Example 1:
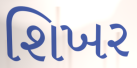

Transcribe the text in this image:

શિખર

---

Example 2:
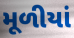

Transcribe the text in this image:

મૂળીયાં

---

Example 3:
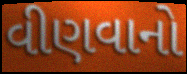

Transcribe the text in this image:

વીણવાનો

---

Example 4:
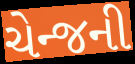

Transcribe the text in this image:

ચેન્જની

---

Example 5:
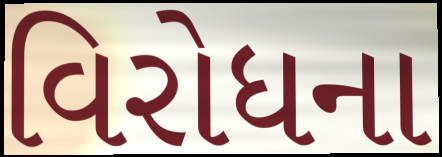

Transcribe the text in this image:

વિરોધના